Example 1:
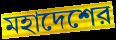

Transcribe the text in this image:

মহাদেশের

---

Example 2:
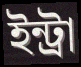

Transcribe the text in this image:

ইন্ট্রা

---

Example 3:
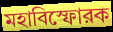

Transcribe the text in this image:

মহাবিস্ফোরক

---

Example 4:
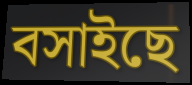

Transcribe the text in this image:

বসাইছে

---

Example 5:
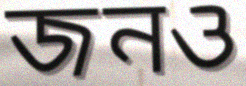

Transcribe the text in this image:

জনও